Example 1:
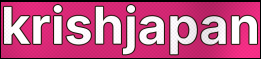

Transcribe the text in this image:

krishjapan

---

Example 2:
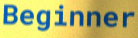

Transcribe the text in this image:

Beginner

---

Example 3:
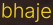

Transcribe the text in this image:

bhaje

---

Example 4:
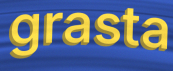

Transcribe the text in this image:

grasta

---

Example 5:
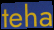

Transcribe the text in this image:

teha